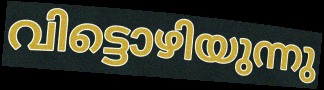
വിട്ടൊഴിയുന്നു